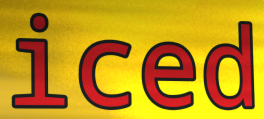
iced